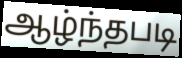
ஆழ்ந்தபடி